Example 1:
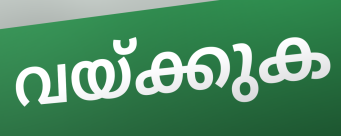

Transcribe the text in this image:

വയ്ക്കുക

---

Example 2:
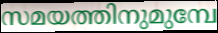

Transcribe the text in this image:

സമയത്തിനുമുമ്പേ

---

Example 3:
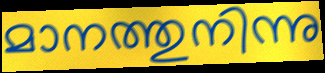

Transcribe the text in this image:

മാനത്തുനിന്നു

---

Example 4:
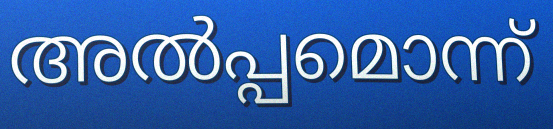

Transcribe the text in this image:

അൽപ്പമൊന്ന്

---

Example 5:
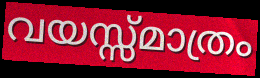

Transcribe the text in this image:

വയസ്സ്മാത്രം